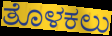
ತೊಳಕಲು